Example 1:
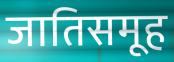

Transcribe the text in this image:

जातिसमूह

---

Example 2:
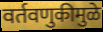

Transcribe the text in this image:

वर्तवणुकीमुळे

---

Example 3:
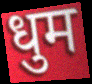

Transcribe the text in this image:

धुम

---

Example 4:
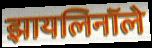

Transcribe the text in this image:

झायलिनॉले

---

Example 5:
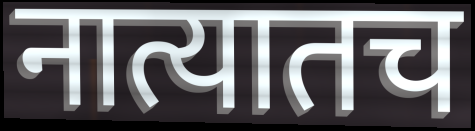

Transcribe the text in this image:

नात्यातच